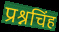
प्रश्नचिंह